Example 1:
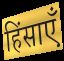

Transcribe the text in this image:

हिंसाएँ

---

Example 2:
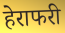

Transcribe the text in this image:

हेराफरी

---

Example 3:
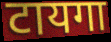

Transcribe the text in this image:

टायगा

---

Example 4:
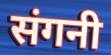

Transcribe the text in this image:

संगनी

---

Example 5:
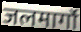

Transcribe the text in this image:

जलमार्गो